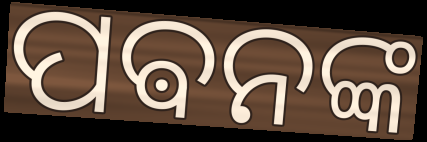
ପଵନଙ୍କ